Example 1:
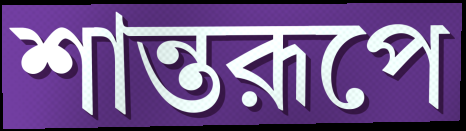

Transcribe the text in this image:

শান্তরূপে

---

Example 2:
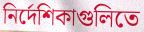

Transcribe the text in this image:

নির্দেশিকাগুলিতে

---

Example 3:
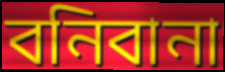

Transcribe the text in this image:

বনিবানা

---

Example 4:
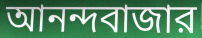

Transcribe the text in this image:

আনন্দবাজার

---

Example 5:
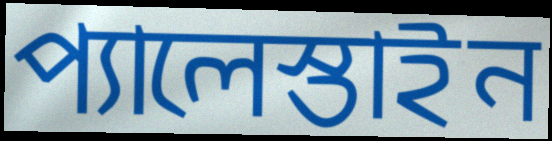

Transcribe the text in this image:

প্যালেস্তাইন